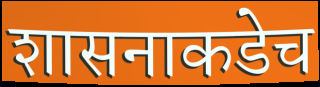
शासनाकडेच